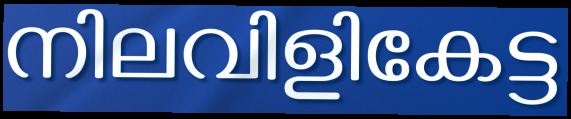
നിലവിളികേട്ട